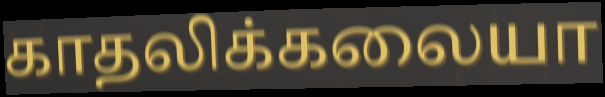
காதலிக்கலையா